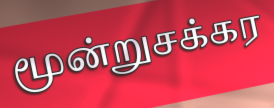
மூன்றுசக்கர